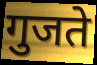
गुजते